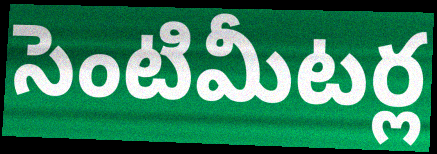
సెంటిమీటర్ల